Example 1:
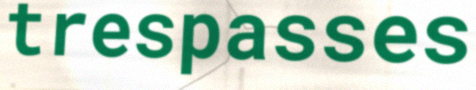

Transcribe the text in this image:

trespasses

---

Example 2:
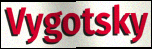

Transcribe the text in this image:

Vygotsky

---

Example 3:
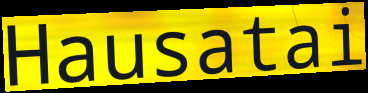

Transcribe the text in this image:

Hausatai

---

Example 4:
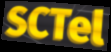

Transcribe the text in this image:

SCTel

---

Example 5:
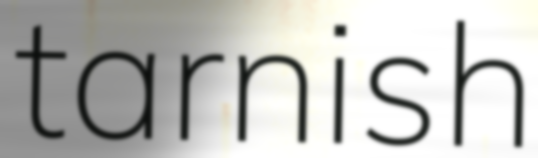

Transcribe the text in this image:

tarnish